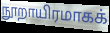
நூறாயிரமாகக்